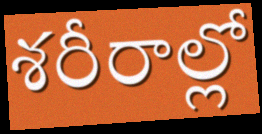
శరీరాల్లో